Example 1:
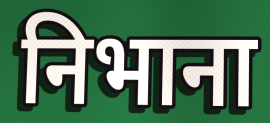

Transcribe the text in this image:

निभाना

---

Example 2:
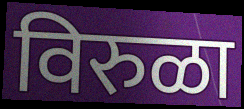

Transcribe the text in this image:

विरुळा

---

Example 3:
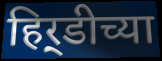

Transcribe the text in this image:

हिर्डीच्या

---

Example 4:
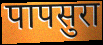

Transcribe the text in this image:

पापसुरा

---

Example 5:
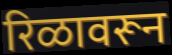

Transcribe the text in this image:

रिळावरून